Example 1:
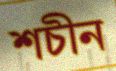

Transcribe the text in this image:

শচীন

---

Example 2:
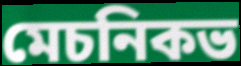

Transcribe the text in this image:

মেচনিকভ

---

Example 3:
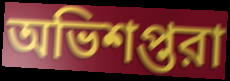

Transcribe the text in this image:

অভিশপ্তরা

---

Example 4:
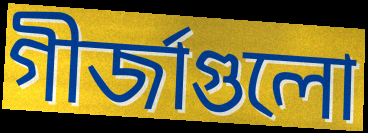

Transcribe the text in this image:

গীর্জাগুলো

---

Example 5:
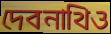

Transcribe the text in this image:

দেবনাথিও